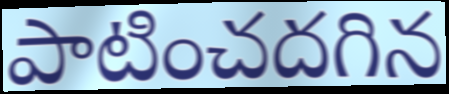
పాటించదగిన